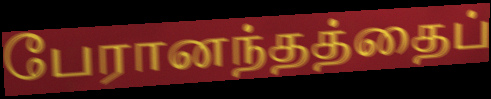
பேரானந்தத்தைப்